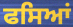
ਫਸਿਆਂ